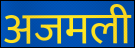
अजमली